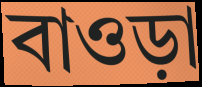
বাওড়া